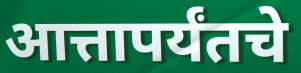
आत्तापर्यंतचे